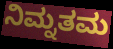
ನಿಮ್ನತಮ